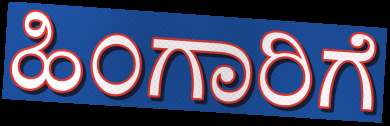
ಹಿಂಗಾರಿಗೆ